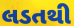
લડતથી